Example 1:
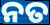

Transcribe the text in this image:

ନତ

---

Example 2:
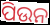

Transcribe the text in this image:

ପିଉନ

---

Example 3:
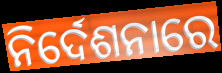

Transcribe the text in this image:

ନିର୍ଦେଶନାରେ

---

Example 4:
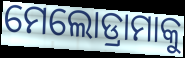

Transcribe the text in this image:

ମେଲୋଡ୍ରାମାକୁ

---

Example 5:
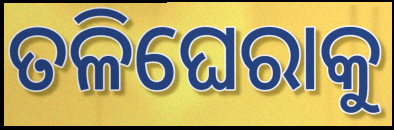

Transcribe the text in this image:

ତଳିଘେରାକୁ